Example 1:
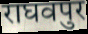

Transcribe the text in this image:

राघवपुर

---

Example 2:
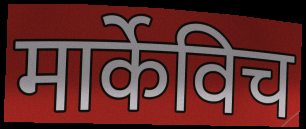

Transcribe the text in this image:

मार्केविच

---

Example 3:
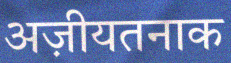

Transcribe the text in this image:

अज़ीयतनाक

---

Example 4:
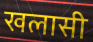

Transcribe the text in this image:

खलासी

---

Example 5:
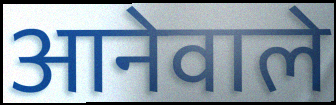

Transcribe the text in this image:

आनेवाले